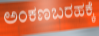
ಅಂಕಣಬರಹಕ್ಕೆ